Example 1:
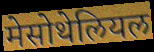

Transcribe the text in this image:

मेसोथेलियल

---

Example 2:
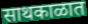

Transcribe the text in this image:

साथकाळात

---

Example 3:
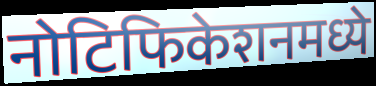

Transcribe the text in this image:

नोटिफिकेशनमध्ये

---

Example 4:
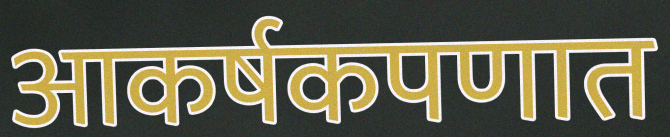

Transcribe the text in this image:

आकर्षकपणात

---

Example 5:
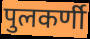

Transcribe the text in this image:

पुलकर्णी